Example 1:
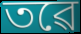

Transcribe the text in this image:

তৱে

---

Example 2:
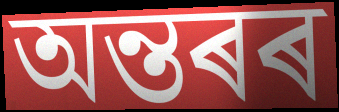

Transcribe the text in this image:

অন্তৰৰ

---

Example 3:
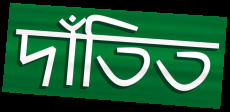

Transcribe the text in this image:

দাঁতিত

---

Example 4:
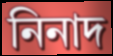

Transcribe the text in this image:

নিনাদ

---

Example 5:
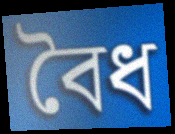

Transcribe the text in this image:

বৈধ